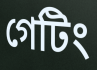
গেটিং